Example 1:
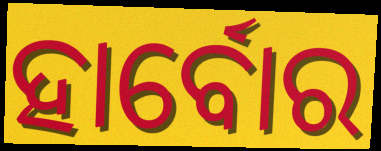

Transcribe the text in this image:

ହାର୍ବୋର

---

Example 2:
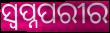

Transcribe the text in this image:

ସ୍ୱପ୍ନପରୀର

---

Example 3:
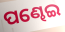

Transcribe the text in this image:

ପଣ୍ଢେଇ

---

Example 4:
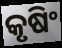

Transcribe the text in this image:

କୃଷିଂ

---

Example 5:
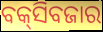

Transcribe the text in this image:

ବକ୍‌ସିବଜାର